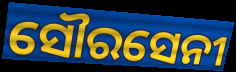
ସୌରସେନୀ